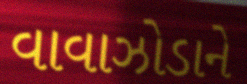
વાવાઝોડાને